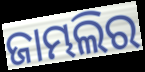
ଜାମ୍ଭଲିର